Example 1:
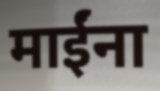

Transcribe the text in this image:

माईंना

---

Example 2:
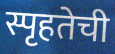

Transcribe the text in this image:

स्पृहतेची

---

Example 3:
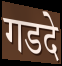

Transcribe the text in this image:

गडदे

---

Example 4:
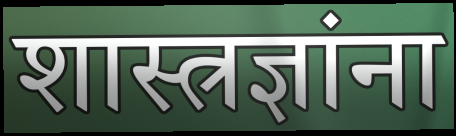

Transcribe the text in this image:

शास्त्रज्ञांना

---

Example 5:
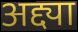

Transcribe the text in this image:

अद्द्या